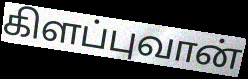
கிளப்புவான்